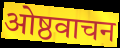
ओष्ठवाचन